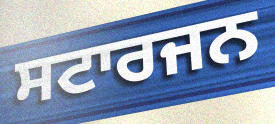
ਸਟਾਰਜਨ